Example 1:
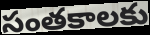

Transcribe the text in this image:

సంతకాలకు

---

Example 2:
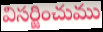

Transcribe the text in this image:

విసర్జించుము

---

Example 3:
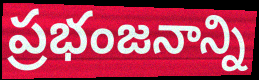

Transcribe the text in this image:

ప్రభంజనాన్ని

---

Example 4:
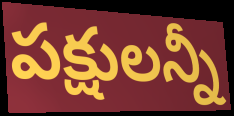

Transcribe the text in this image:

పక్షులన్నీ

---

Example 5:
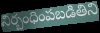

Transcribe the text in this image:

నిర్బంధింపబడితిని